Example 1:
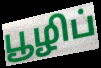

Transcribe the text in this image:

பூழிப்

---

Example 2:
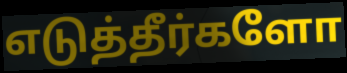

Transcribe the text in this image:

எடுத்தீர்களோ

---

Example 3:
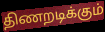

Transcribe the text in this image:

திணறடிக்கும்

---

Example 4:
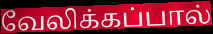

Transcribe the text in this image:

வேலிக்கப்பால்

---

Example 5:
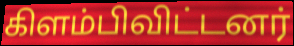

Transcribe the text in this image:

கிளம்பிவிட்டனர்